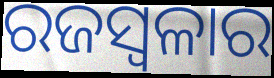
ରଜସ୍ୱଳାର